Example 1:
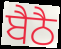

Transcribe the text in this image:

ਬੈਠੈ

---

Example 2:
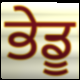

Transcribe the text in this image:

ਭੇਡੂ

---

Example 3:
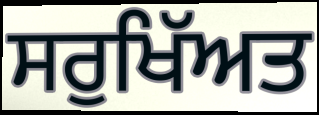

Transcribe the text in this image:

ਸਰੁਖਿੱਅਤ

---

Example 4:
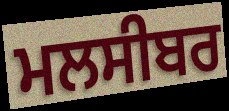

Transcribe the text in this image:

ਮਲਸੀਬਰ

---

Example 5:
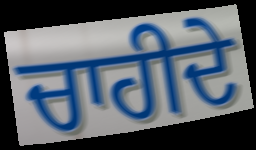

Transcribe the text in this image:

ਚਾਹੀਦੇ